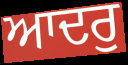
ਆਦਰੁ